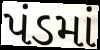
પંડમાં